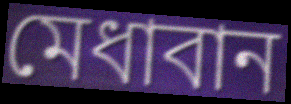
মেধাবান